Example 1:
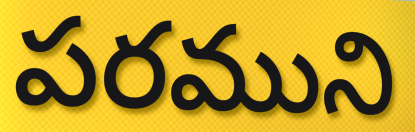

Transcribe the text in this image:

పరముని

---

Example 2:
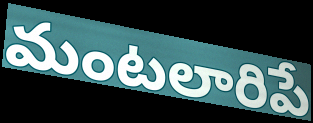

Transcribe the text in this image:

మంటలారిపే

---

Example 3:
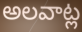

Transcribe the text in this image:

అలవాట్ల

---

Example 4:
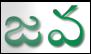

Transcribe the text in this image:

జవ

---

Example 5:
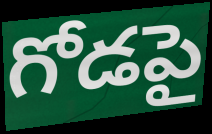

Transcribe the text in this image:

గోడపై